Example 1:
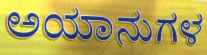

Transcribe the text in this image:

ಅಯಾನುಗಳ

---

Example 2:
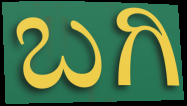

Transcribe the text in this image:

ಬಗಿ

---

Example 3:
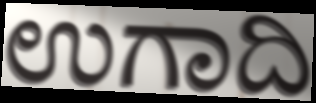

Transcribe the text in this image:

ಉಗಾದಿ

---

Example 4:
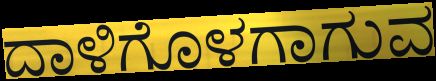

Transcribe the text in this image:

ದಾಳಿಗೊಳಗಾಗುವ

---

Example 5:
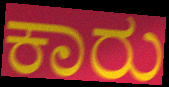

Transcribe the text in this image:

ಕಾರು